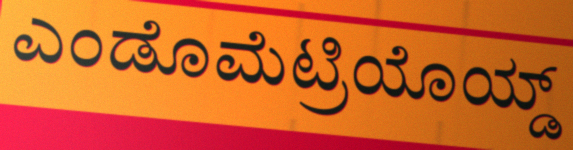
ಎಂಡೊಮೆಟ್ರಿಯೊಯ್ಡ್